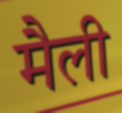
मैली